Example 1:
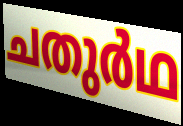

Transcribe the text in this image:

ചതുർഥ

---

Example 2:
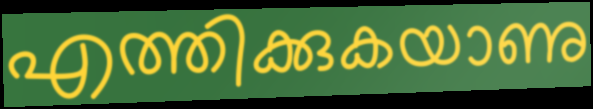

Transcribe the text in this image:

എത്തിക്കുകയാണു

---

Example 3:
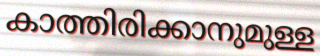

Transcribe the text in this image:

കാത്തിരിക്കാനുമുള്ള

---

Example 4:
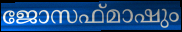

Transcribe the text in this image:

ജോസഫ്മാഷും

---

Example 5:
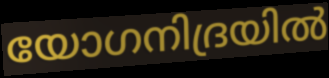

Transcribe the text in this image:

യോഗനിദ്രയിൽ